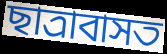
ছাত্ৰাবাসত